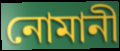
নোমানী